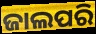
ଜାଲପରି